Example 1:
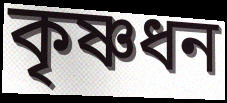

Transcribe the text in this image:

কৃষ্ণধন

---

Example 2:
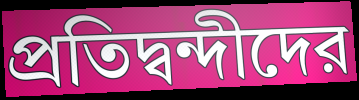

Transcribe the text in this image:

প্রতিদ্বন্দীদের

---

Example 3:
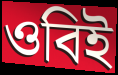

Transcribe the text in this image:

ওবিই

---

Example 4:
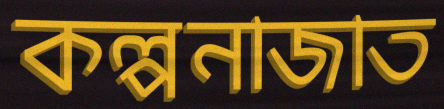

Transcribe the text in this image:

কল্পনাজাত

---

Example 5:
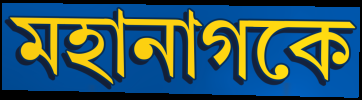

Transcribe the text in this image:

মহানাগকে